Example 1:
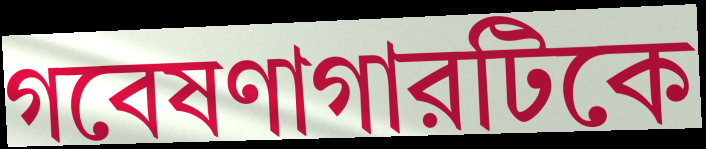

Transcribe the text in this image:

গবেষণাগারটিকে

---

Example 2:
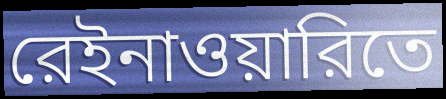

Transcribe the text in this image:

রেইনাওয়ারিতে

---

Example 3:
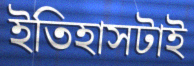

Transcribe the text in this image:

ইতিহাসটাই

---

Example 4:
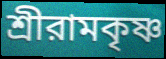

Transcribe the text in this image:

শ্রীরামকৃষ্ণ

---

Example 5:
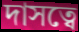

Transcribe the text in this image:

দাসত্বে